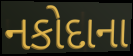
નકોદાના